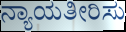
ನ್ಯಾಯತೀರಿಸು